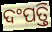
ଦଂପତ୍ତି